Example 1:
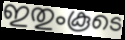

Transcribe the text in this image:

ഇതുംകൂടെ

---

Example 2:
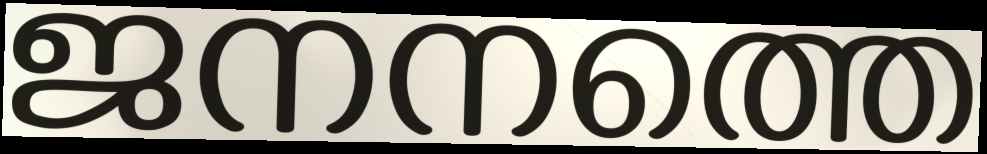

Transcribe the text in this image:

ജനനത്തെ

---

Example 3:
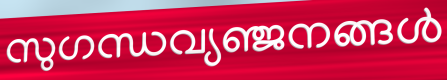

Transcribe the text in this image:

സുഗന്ധവ്യഞ്ജനങ്ങൾ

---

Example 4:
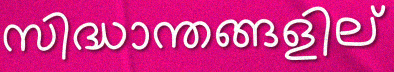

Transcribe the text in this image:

സിദ്ധാന്തങ്ങളില്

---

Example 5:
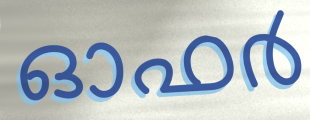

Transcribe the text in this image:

ഓഫർ